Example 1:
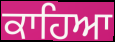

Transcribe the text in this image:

ਕਾਹਿਆ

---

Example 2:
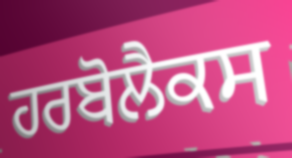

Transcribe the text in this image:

ਹਰਬੋਲੈਕਸ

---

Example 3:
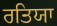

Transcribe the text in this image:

ਰਤਿਯਾ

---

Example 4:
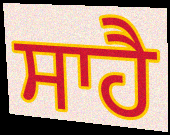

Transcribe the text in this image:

ਸਾਹੈ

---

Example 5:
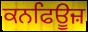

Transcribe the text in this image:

ਕਨਫਿਊਜ਼